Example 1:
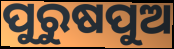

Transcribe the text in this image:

ପୁରୁଷପୁଅ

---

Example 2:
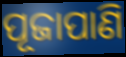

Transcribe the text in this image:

ପୂଜାପାଣି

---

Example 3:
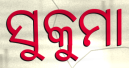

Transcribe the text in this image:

ସୁକୁମା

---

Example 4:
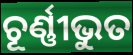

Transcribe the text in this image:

ଚୂର୍ଣ୍ଣୀଭୁତ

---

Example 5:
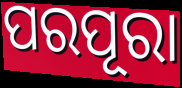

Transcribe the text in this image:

ପରପୂରା